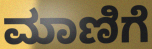
ಮಾಣಿಗೆ